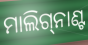
ମାଲିଗ୍‌ନାଣ୍ଟ